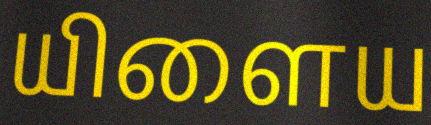
யிளைய